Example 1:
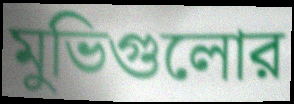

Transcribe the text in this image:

মুভিগুলোর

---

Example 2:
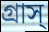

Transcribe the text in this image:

গ্রাস্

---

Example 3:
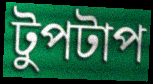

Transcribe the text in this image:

টুপটাপ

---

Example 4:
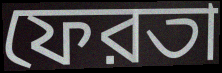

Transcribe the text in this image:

ফেরতা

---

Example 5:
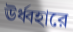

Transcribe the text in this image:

ঊর্ধ্বহারে